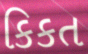
કિકત